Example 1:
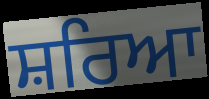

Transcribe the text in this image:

ਸ਼ਰਿਆ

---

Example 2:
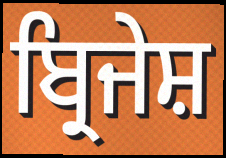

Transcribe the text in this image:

ਬ੍ਰਿਜੇਸ਼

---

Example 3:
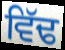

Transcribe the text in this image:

ਵਿੱਢ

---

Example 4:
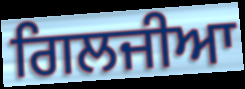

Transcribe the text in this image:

ਗਿਲਜੀਆ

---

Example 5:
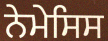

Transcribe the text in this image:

ਨੇਮੇਸਿਸ